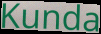
Kunda